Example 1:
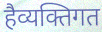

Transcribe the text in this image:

हैव्यक्तिगत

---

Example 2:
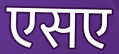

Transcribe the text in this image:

एसए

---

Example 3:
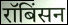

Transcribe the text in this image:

रॉबिंसन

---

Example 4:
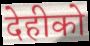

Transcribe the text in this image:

देहीको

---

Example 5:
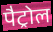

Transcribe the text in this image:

पैट्रोल